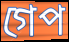
গেপ